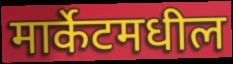
मार्केटमधील